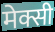
मेक्सी